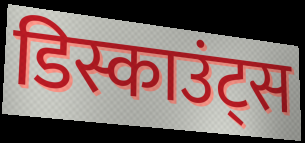
डिस्काउंट्स